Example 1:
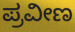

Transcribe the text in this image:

ಪ್ರವೀಣ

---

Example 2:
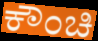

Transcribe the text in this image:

ಕೌಂಚಿ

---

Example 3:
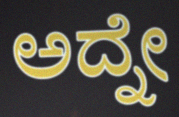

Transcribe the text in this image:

ಅದ್ನೇ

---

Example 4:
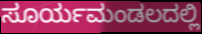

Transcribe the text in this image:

ಸೂರ್ಯಮಂಡಲದಲ್ಲಿ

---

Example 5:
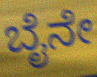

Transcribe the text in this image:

ಬೈನೇ